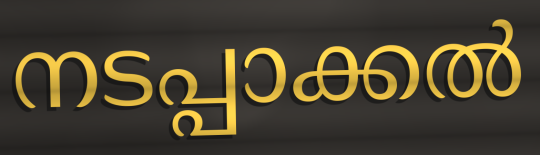
നടപ്പാക്കൽ